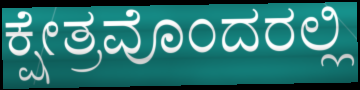
ಕ್ಷೇತ್ರವೊಂದರಲ್ಲಿ